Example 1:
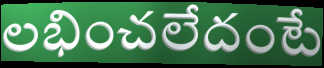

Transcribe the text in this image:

లభించలేదంటే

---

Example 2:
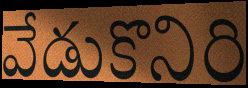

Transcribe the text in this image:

వేడుకొనిరి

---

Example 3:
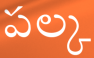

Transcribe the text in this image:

పల్క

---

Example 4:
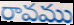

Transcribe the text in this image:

రావము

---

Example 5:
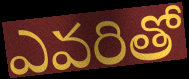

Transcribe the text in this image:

ఎవరితో